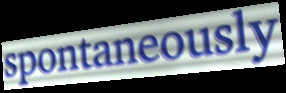
spontaneously